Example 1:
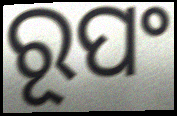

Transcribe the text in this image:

ରୂପଂ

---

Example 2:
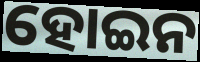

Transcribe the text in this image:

ହୋଇନ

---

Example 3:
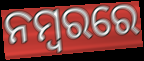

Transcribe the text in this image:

ନମ୍ବରରେ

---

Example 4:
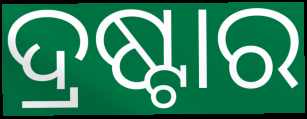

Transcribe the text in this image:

ଦ୍ରଷ୍ଟାର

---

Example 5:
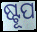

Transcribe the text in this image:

ଷ୍ଟୂପ